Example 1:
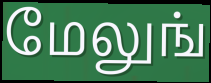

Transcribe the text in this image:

மேலுங்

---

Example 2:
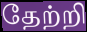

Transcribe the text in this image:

தேற்றி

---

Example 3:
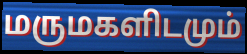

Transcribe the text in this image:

மருமகளிடமும்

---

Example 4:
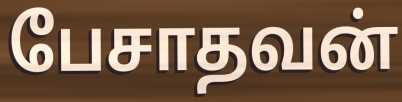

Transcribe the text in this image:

பேசாதவன்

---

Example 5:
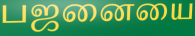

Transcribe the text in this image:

பஜனையை